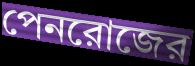
পেনরোজের